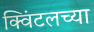
क्विंटलच्या